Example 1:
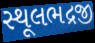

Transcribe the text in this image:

સ્થૂલભદ્રજી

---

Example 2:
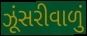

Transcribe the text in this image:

ઝૂંસરીવાળું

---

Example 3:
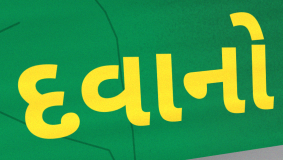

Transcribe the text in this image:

દવાનો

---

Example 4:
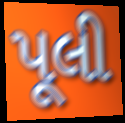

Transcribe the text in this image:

પૂલી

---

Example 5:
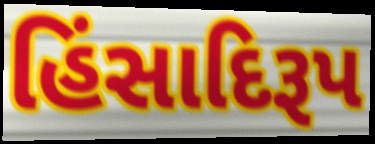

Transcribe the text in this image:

હિંસાદિરૂપ